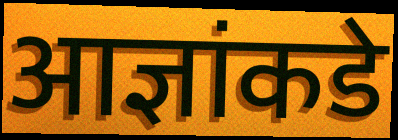
आज्ञांकडे